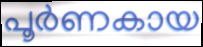
പൂർണകായ